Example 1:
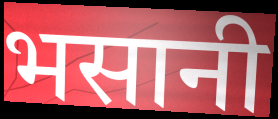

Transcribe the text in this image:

भसानी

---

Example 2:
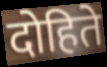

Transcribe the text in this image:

दोहिते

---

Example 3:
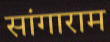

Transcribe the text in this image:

सांगाराम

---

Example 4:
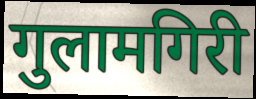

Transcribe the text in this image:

गुलामगिरी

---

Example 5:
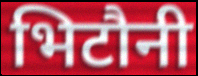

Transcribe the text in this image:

भिटौनी